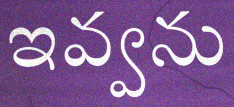
ఇవ్వను